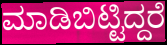
ಮಾಡಿಬಿಟ್ಟಿದ್ದರೆ